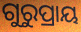
ଗୁରୁପ୍ରାୟ